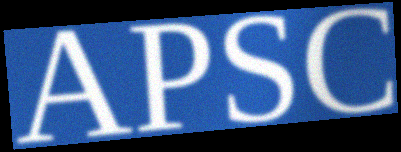
APSC